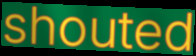
shouted